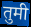
तुमी